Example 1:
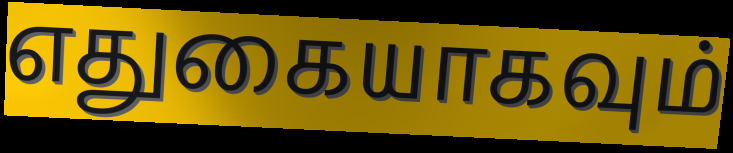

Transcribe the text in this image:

எதுகையாகவும்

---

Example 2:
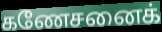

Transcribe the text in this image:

கணேசனைக்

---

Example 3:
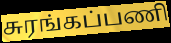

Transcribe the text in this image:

சுரங்கப்பணி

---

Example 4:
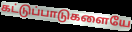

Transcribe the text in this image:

கட்டுப்பாடுகளையே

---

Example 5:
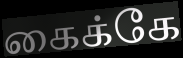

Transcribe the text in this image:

கைக்கே